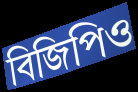
বিজিপিও